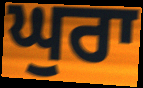
ਘੁਰਾ